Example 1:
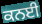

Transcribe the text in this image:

ਕਨਈ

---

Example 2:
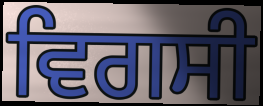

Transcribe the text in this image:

ਵਿਗਸੀ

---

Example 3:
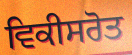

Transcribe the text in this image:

ਵਿਕੀਸਰੋਤ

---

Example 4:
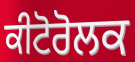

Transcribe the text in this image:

ਕੀਟੋਰੋਲਕ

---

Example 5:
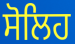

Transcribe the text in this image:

ਸੋਲਿਹ